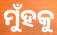
ମୁଁହକୁ